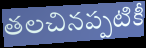
తలచినప్పటికీ